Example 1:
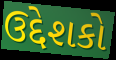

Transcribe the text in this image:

ઉદ્દેશકો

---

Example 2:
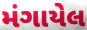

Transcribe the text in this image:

મંગાયેલ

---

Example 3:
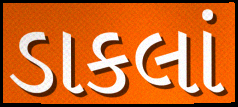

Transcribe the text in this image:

ડાકલાં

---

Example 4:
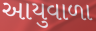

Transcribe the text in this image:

આયુવાળા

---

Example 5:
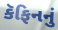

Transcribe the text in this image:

કૅફિનનું